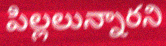
పిల్లలున్నారని